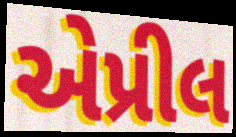
એપ્રીલ